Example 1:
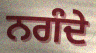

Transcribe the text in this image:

ਨਗੰਦੇ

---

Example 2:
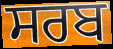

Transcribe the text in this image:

ਸਰਬ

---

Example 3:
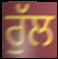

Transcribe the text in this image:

ਰੁੱਲ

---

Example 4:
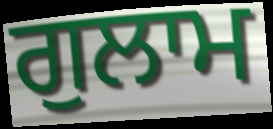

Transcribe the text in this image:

ਗੁਲਾਮ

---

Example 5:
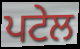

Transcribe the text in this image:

ਪਟੇਲ